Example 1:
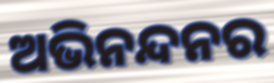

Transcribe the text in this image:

ଅଭିନନ୍ଦନର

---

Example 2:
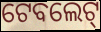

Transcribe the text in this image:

ଟେବଲେଟ୍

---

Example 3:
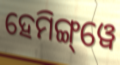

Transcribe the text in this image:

ହେମିଙ୍ଗ୍‌ୱେ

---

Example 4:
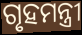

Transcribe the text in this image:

ଗୃହମନ୍ତ୍ରୀ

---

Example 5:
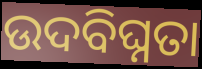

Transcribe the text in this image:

ଉଦବିଘ୍ନତା